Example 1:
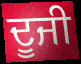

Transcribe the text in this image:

ਦੂਜੀ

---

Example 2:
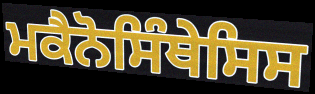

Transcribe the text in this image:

ਮਕੈਨੋਸਿੰਥੇਸਿਸ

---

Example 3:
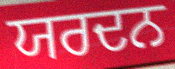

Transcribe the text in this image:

ਯਰਦਨ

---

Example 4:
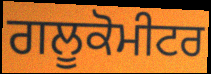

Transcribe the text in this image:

ਗਲੂਕੋਮੀਟਰ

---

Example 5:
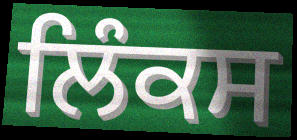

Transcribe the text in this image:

ਲਿੰਕਸ